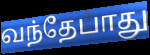
வந்தேபாது